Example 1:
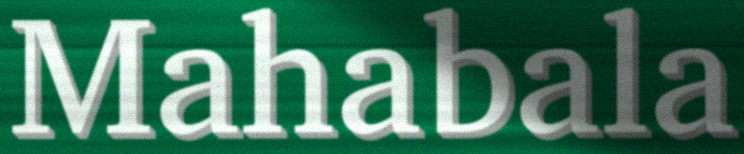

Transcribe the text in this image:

Mahabala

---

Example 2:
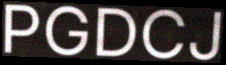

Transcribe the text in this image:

PGDCJ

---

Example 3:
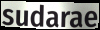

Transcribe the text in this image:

sudarae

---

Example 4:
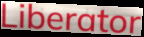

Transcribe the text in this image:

Liberator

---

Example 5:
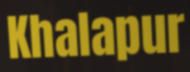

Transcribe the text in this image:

Khalapur